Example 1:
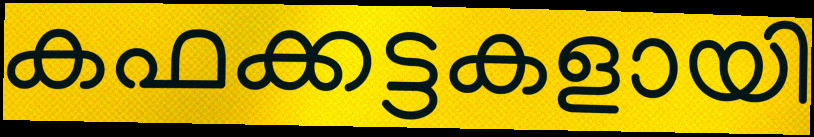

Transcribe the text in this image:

കഫക്കട്ടകളായി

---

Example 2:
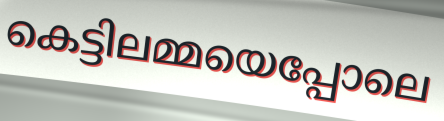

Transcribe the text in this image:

കെട്ടിലമ്മയെപ്പോലെ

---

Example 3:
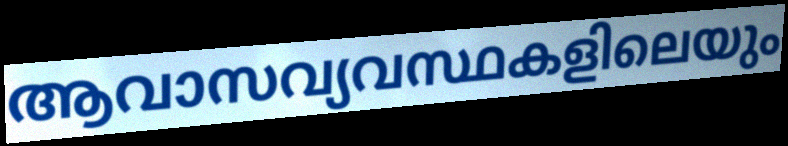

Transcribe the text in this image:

ആവാസവ്യവസ്ഥകളിലെയും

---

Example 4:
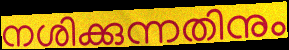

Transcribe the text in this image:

നശിക്കുന്നതിനും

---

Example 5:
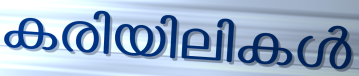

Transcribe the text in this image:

കരിയിലികൾ